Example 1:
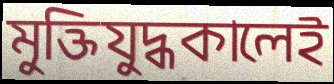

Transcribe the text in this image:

মুক্তিযুদ্ধকালেই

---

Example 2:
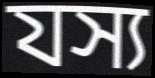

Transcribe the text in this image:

যস্য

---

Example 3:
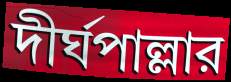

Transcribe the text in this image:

দীর্ঘপাল্লার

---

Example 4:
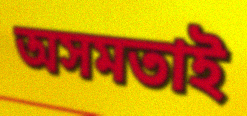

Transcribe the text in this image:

অসমতাই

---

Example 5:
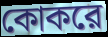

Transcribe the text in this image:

কোকরে